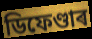
ডিফেণ্ডাৰ